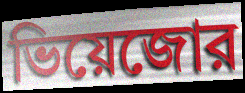
ভিয়েজোর